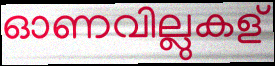
ഓണവില്ലുകള്